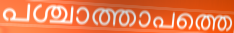
പശ്ചാത്താപത്തെ